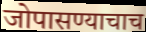
जोपासण्याचाच